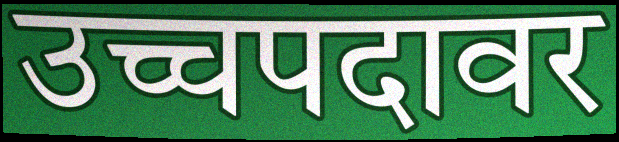
उच्चपदावर